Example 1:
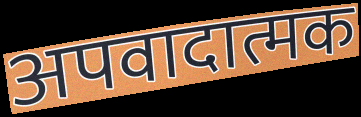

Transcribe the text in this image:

अपवादात्मक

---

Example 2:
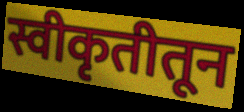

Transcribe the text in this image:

स्वीकृतीतून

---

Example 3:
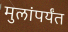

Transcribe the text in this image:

मुलांपर्यंत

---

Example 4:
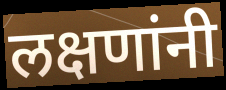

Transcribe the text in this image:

लक्षणांनी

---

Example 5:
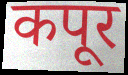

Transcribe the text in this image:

कपूर